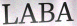
LABA